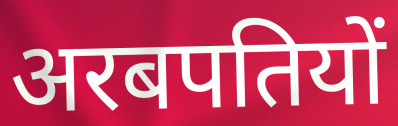
अरबपतियों